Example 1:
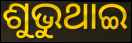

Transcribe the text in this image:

ଶୁଭୁଥାଇ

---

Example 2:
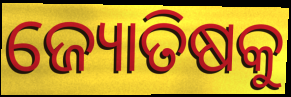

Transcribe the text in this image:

ଜ୍ୟୋତିଷକୁ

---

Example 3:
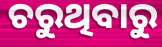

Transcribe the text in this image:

ଚରୁଥିବାରୁ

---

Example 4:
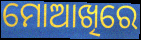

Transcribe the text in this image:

ମୋଆଖିରେ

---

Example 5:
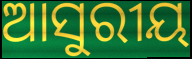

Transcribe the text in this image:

ଆସୁରୀୟ